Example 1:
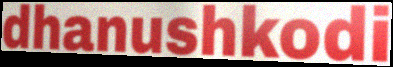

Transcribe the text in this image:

dhanushkodi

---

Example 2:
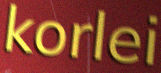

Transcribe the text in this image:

korlei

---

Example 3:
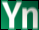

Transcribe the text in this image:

Yn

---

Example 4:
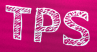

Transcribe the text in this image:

TPS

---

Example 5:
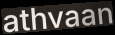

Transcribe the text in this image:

athvaan